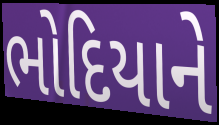
ભોદિયાને